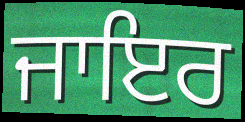
ਜਾਇਰ